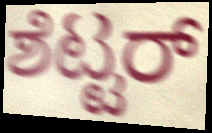
ಶೆಟ್ಟರ್